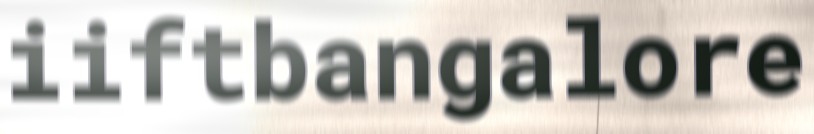
iiftbangalore